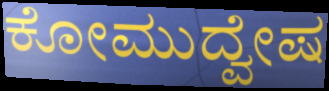
ಕೋಮುದ್ವೇಷ